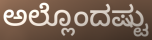
ಅಲ್ಲೊಂದಷ್ಟು